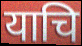
याचि